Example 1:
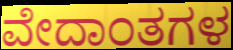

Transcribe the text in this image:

ವೇದಾಂತಗಳ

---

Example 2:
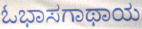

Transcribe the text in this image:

ಓಭಾಸಗಾಥಾಯ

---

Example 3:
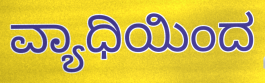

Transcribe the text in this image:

ವ್ಯಾಧಿಯಿಂದ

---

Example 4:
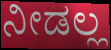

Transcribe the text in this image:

ನೀಡಲ್ಲ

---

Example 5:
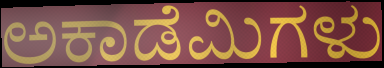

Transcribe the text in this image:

ಅಕಾಡೆಮಿಗಳು